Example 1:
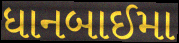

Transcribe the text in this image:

ધાનબાઈમા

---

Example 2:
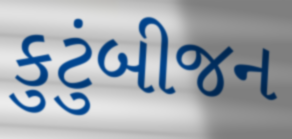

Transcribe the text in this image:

કુટુંબીજન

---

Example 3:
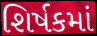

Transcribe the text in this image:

શિર્ષકમાં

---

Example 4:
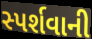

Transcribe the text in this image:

સ્પર્શવાની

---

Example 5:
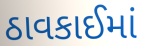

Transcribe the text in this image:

ઠાવકાઈમાં